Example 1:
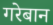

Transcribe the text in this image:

गरेबान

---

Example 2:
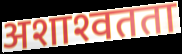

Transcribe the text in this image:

अशाश्वतता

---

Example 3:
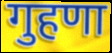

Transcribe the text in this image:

गुहणा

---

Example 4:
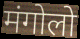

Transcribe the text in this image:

मंगोलो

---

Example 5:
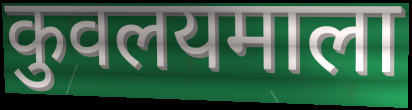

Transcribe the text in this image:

कुवलयमाला